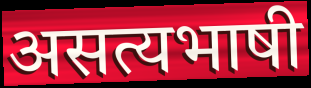
असत्यभाषी